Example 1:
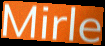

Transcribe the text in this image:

Mirle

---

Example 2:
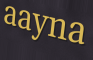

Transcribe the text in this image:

aayna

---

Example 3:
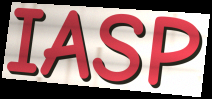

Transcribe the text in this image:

IASP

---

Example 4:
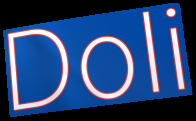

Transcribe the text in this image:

Doli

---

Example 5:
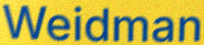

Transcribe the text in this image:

Weidman